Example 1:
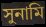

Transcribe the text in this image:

সুনামি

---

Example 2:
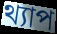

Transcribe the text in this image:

থ্যাপ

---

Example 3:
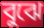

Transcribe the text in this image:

বুঝে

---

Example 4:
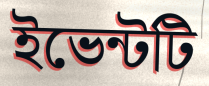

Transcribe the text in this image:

ইভেন্টটি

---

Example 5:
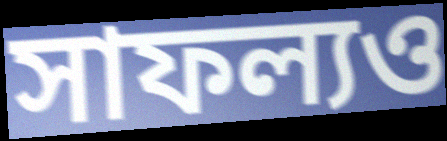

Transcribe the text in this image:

সাফল্যও